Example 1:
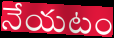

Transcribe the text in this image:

నేయటం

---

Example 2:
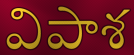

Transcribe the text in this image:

విపాశ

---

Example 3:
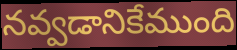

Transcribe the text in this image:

నవ్వడానికేముంది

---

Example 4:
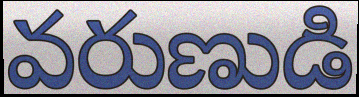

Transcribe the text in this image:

వరుణుడి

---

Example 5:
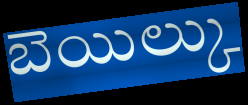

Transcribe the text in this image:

బెయిల్కు